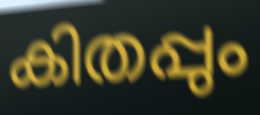
കിതപ്പും